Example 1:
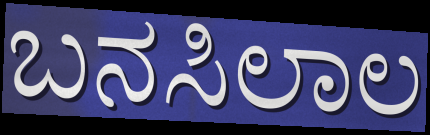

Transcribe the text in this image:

ಬನಸಿಲಾಲ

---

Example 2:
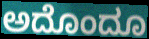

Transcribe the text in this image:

ಅದೊಂದೂ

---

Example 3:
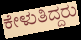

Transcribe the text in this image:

ಕೇಳುತಿದ್ದರು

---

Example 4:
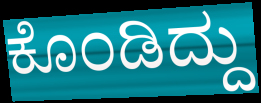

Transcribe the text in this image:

ಕೊಂಡಿದ್ದು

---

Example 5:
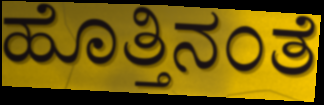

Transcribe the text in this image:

ಹೊತ್ತಿನಂತೆ